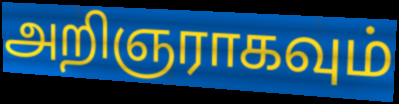
அறிஞராகவும்